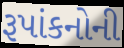
રૂપાંકનોની